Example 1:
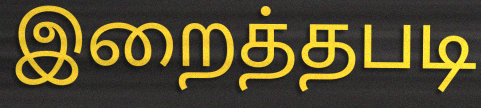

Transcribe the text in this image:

இறைத்தபடி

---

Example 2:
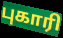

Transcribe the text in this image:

புகாரி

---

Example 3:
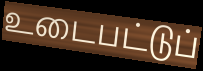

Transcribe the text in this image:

உடைபட்டுப்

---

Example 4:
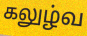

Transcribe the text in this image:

கலுழ்வ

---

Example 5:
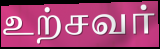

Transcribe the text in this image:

உற்சவர்